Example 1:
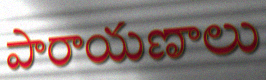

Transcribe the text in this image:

పారాయణాలు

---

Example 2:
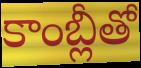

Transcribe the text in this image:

కాంబ్లీతో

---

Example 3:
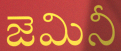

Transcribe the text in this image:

జెమినీ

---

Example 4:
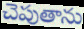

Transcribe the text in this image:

చెపుతాను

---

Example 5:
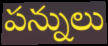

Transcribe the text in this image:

పన్నులు